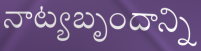
నాట్యబృందాన్ని